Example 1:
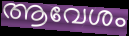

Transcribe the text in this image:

ആവേശം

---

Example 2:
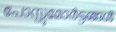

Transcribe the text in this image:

പോസ്റ്റുമോർട്ടങ്ങൾ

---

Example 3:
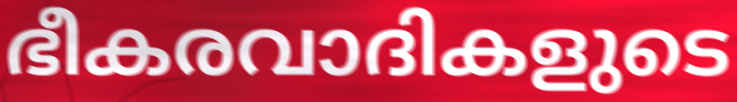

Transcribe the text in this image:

ഭീകരവാദികളുടെ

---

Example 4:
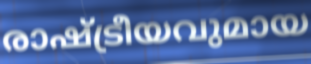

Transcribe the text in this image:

രാഷ്ട്രീയവുമായ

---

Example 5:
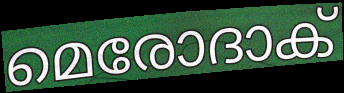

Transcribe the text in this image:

മെരോദാക്